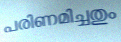
പരിണമിച്ചതും